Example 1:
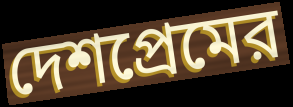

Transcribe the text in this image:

দেশপ্রেমের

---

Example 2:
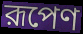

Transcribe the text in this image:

রূপেণ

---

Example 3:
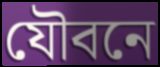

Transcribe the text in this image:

যৌবনে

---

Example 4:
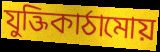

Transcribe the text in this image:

যুক্তিকাঠামোয়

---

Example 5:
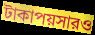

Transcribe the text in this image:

টাকাপয়সারও